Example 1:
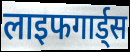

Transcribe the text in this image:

लाइफगार्ड्स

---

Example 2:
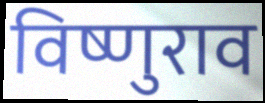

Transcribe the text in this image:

विष्णुराव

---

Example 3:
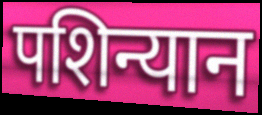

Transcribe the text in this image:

पशिन्यान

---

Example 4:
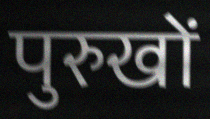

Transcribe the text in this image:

पुरुखों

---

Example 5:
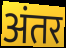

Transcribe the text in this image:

अंतर